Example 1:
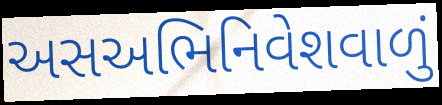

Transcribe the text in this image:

અસઅભિનિવેશવાળું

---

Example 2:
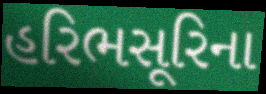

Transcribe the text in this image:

હરિભસૂરિના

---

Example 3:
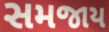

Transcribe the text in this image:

સમજાય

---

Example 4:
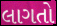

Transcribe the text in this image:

લાગતો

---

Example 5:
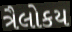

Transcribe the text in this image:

ત્રૈલોકય